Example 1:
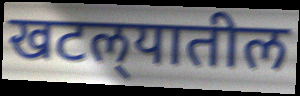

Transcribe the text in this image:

खटल्यातील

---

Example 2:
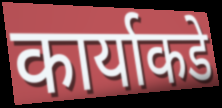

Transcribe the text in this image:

कार्याकडे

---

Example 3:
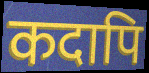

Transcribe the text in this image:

कदापि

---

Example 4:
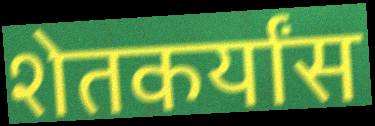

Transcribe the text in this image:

शेतकर्यांस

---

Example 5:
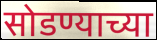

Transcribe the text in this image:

सोडण्याच्या